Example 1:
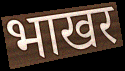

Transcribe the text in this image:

भाखर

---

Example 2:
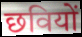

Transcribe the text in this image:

छवियों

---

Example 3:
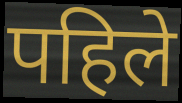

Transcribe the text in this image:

पहिले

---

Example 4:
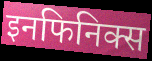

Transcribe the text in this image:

इनफिनिक्स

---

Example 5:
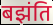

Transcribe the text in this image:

बझंति